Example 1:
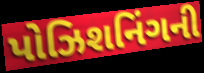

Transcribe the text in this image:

પોઝિશનિંગની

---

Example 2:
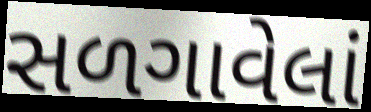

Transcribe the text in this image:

સળગાવેલાં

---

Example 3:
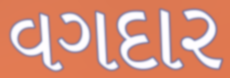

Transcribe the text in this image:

વગદાર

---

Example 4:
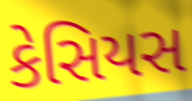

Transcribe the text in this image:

કેસિયસ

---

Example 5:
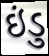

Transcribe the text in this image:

ઇંડુ